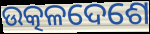
ଉତ୍କଳଦେଶେ